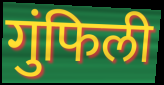
गुंफिली